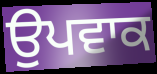
ਉਪਵਾਕ